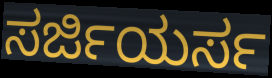
ಸರ್ಜಿಯರ್ಸ